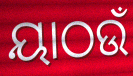
ୟାଠଉଁ